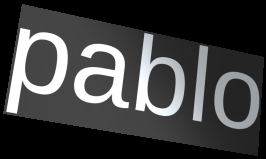
pablo